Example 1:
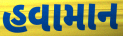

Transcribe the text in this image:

હવામાન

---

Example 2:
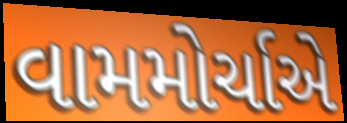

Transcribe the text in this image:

વામમોર્ચાએ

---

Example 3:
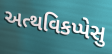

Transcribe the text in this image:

અત્થવિકપ્પેસુ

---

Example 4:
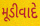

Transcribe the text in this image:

મૂડીવાદે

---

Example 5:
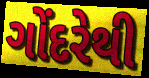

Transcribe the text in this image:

ગોંદરેથી